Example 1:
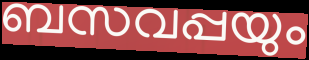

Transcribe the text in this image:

ബസവപ്പയും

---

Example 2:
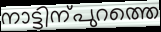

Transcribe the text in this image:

നാട്ടിന്പുറത്തെ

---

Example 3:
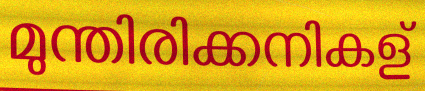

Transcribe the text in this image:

മുന്തിരിക്കനികള്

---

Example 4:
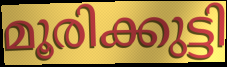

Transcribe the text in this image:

മൂരിക്കുട്ടി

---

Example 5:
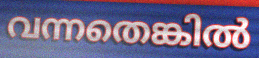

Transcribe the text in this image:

വന്നതെങ്കിൽ